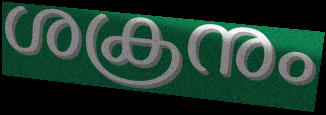
ശക്രനും